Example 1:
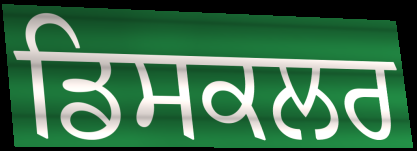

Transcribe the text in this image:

ਡਿਸਕਲਰ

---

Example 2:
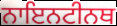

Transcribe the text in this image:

ਨਾਇਨਟੀਨਥ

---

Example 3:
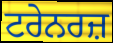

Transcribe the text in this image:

ਟਰੇਨਰਜ਼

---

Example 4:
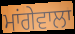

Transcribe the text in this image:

ਮਾਂਗੇਵਾਲਾ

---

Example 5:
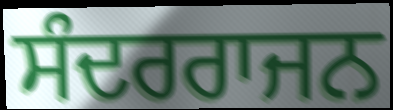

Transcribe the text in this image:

ਸੰਦਰਰਾਜਨ